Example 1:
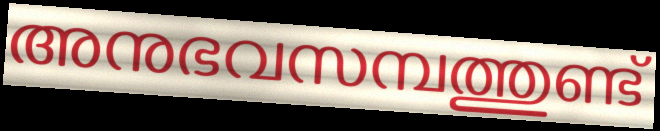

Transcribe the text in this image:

അനുഭവസമ്പത്തുണ്ട്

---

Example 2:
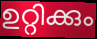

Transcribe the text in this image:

ഉറ്റിക്കും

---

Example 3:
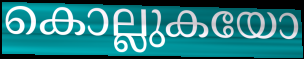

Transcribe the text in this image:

കൊല്ലുകയോ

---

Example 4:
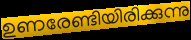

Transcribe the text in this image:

ഉണരേണ്ടിയിരിക്കുന്നു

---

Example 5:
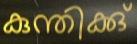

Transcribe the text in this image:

കുന്തിക്കു്